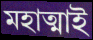
মহাত্মাই